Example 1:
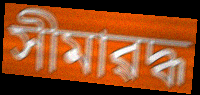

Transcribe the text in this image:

সীমাৱদ্ধ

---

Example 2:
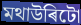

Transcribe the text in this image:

মথাউৰিটো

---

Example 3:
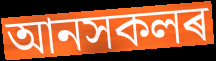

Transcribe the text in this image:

আনসকলৰ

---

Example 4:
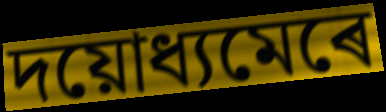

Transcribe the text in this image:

দয়োধ্যমেৰে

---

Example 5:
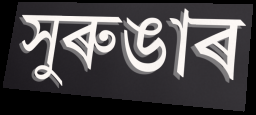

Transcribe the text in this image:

সুৰুঙাৰ